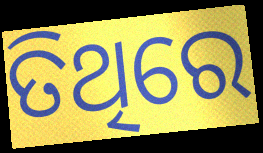
ତିଥିରେ